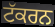
ਟੱਕਰਨ